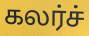
கலர்ச்